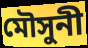
মৌসুনী